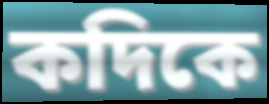
কদিকে